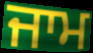
ਜਾਮ